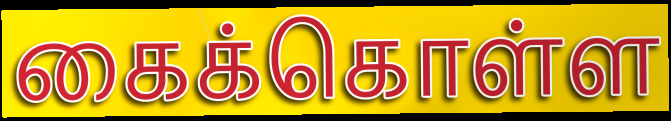
கைக்கொள்ள